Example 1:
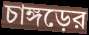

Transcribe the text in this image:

চাঙ্গড়ের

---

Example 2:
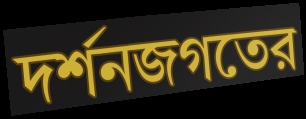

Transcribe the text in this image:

দর্শনজগতের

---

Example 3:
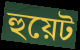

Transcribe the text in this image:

হুয়েট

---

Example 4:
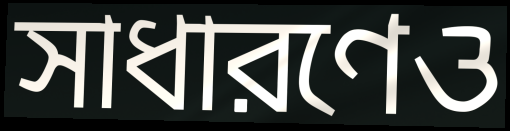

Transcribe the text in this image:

সাধারণেও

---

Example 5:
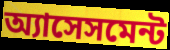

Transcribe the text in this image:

অ্যাসেসমেন্ট